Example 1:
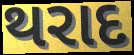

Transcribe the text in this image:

થરાદ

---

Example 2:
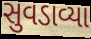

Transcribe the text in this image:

સુવડાવ્યા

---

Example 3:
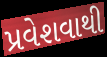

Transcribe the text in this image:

પ્રવેશવાથી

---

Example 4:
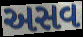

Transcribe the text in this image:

અસવ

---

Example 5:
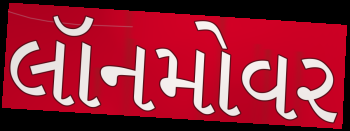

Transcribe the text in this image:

લૉનમોવર